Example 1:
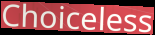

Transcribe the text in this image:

Choiceless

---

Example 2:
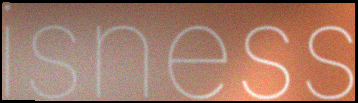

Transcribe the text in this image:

isness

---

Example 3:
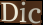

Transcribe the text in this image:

Dic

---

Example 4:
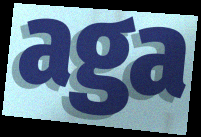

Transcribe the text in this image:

aga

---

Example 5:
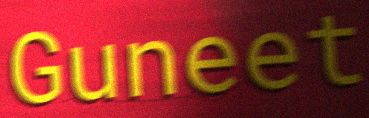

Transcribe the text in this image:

Guneet